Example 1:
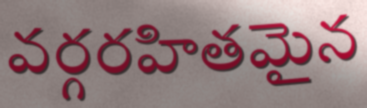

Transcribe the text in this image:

వర్గరహితమైన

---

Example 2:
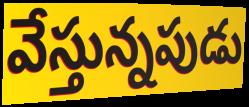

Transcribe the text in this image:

వేస్తున్నపుడు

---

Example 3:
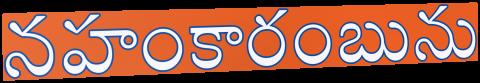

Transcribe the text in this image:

నహంకారంబును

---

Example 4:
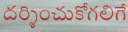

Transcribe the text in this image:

దర్శించుకోగలిగే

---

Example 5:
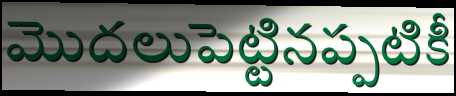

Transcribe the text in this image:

మొదలుపెట్టినప్పటికీ